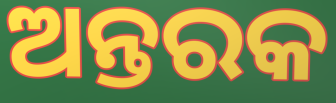
ଅନ୍ତରକ